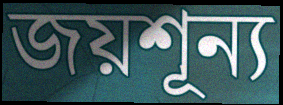
জয়শূন্য